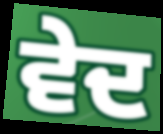
ਵੇਦ